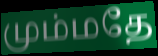
மும்மதே